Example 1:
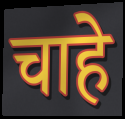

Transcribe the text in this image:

चाहे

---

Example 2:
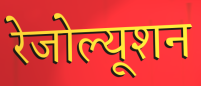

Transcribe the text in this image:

रेजोल्यूशन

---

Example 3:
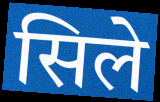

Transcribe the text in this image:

सिले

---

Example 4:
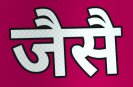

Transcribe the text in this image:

जैसै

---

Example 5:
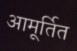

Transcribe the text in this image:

आमूर्तित